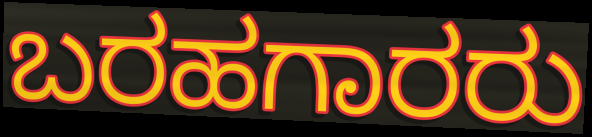
ಬರಹಗಾರರು